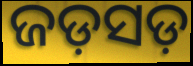
ଜଡ଼ସଡ଼